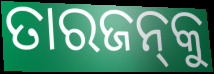
ତାରଜନ୍‌କୁ